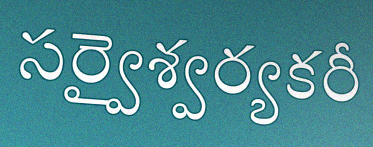
సర్వైశ్వర్యకరీ